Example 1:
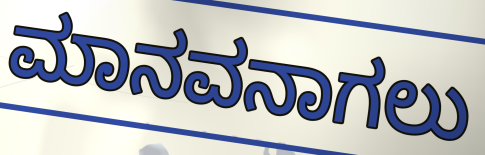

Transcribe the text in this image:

ಮಾನವನಾಗಲು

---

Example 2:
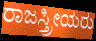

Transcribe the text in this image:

ರಾಜಸ್ತ್ರೀಯರು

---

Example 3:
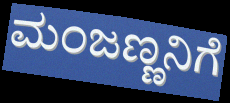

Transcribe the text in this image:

ಮಂಜಣ್ಣನಿಗೆ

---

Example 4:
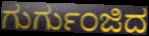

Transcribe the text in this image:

ಗುರ್ಗುಂಜಿದ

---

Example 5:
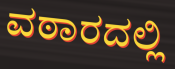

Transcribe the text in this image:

ವಠಾರದಲ್ಲಿ